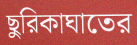
ছুরিকাঘাতের